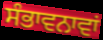
ਸੰਭਾਵਨਾਵਾਂ